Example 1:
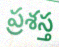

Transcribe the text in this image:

ప్రశస్త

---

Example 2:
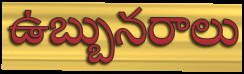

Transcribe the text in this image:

ఉబ్బునరాలు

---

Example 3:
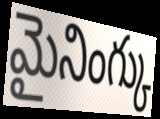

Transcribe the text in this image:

మైనింగ్కు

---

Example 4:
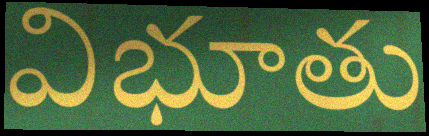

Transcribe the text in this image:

విభూతు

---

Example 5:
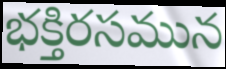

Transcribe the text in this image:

భక్తిరసమున